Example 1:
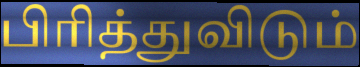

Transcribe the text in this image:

பிரித்துவிடும்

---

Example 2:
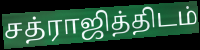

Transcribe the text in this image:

சத்ராஜித்திடம்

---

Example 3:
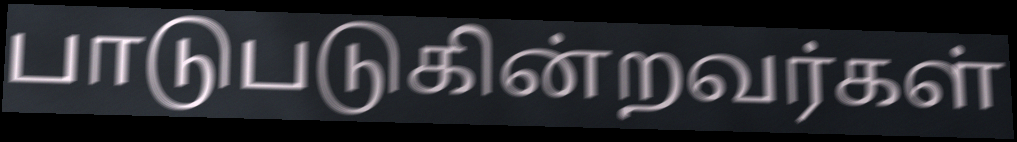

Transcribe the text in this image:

பாடுபடுகின்றவர்கள்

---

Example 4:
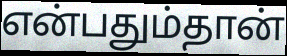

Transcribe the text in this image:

என்பதும்தான்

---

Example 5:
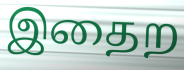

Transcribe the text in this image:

இதைற